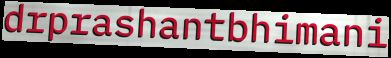
drprashantbhimani